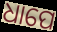
ଧାପେ